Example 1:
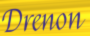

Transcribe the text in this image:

Drenon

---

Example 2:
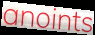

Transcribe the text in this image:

anoints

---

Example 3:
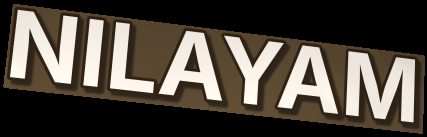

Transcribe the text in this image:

NILAYAM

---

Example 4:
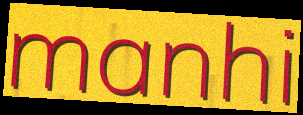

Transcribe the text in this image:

manhi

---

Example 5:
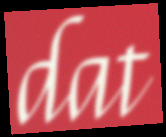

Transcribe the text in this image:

dat